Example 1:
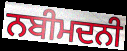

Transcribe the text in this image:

ਨਬੀਮਦਨੀ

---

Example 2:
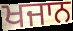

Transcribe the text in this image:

ਖਜਾਨ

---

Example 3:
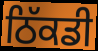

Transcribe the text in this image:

ਠਿੱਕਡੀ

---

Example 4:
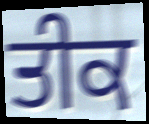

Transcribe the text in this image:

ਤੀਕ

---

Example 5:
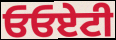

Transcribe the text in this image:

ਓਓਏਟੀ